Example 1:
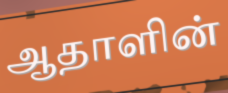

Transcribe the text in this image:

ஆதாளின்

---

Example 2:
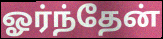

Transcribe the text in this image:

ஓர்ந்தேன்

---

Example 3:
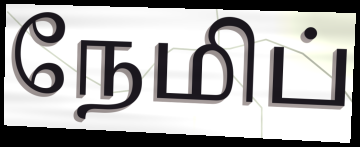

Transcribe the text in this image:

நேமிப்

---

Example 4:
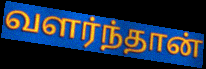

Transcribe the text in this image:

வளர்ந்தான்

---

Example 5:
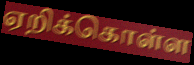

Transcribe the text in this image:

ஏறிக்கொள்ள